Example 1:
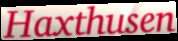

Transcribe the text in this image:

Haxthusen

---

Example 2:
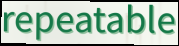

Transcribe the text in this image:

repeatable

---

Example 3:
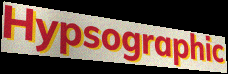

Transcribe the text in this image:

Hypsographic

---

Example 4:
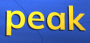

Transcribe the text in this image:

peak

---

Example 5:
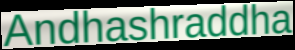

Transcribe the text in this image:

Andhashraddha